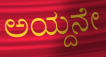
ಅಯ್ದನೇ